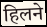
हिलने